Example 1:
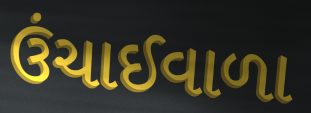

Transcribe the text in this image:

ઉંચાઈવાળા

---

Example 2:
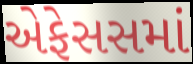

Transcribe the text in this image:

એફેસસમાં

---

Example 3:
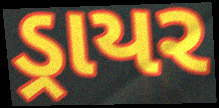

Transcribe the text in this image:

ડ્રાયર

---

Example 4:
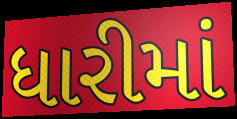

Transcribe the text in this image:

ધારીમાં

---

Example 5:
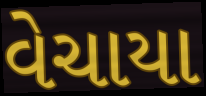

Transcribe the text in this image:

વેચાયા